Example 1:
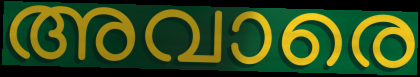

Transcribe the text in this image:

അവാരെ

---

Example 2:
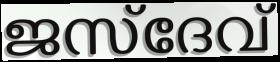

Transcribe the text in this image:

ജസ്ദേവ്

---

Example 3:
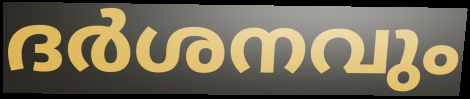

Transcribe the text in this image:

ദർശനവും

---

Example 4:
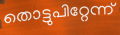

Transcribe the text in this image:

തൊട്ടുപിറ്റേന്ന്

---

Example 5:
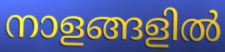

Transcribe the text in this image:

നാളങ്ങളിൽ